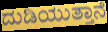
ದುಡಿಯುತ್ತಾನೆ